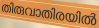
തിരുവാതിരയിൽ